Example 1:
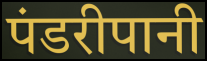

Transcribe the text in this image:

पंडरीपानी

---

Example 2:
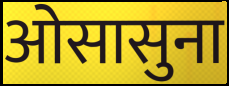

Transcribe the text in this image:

ओसासुना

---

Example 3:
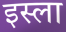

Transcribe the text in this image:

इस्ला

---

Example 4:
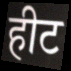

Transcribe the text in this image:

हीट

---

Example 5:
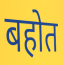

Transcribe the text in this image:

बहोत